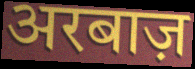
अरबाज़